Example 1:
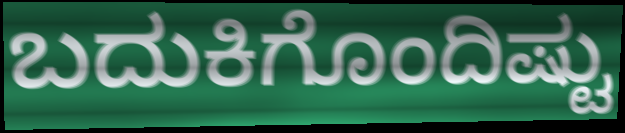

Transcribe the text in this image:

ಬದುಕಿಗೊಂದಿಷ್ಟು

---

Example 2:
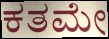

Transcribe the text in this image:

ಕತಮೇ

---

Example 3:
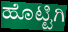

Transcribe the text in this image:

ಹೊಟ್ಟಿಗಿ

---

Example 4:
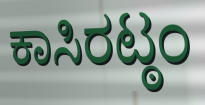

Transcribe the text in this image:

ಕಾಸಿರಟ್ಠಂ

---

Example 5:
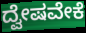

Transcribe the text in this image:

ದ್ವೇಷವೇಕೆ